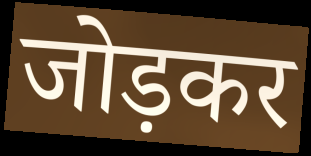
जोड़कर